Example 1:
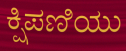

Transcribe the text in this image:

ಕ್ಷಿಪಣಿಯು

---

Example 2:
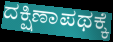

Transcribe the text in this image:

ದಕ್ಷಿಣಾಪಥಕ್ಕೆ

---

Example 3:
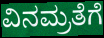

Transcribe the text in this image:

ವಿನಮ್ರತೆಗೆ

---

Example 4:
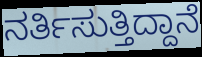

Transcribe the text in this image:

ನರ್ತಿಸುತ್ತಿದ್ದಾನೆ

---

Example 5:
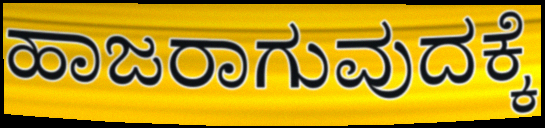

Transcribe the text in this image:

ಹಾಜರಾಗುವುದಕ್ಕೆ